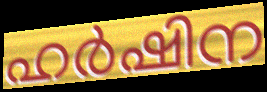
ഹർഷിന